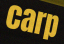
carp